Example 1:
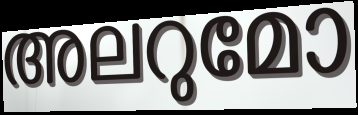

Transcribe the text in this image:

അലറുമോ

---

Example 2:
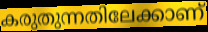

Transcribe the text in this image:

കരുതുന്നതിലേക്കാണ്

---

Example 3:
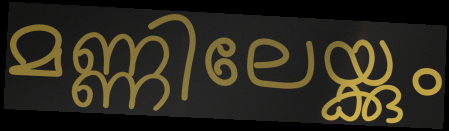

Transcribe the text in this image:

മണ്ണിലേയ്ക്കും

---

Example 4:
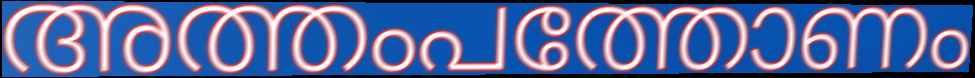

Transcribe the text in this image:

അത്തംപത്തോണം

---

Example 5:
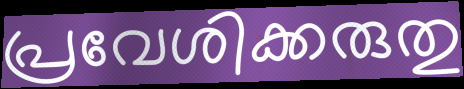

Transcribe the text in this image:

പ്രവേശിക്കരുതു